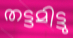
തട്ടമിട്ടു